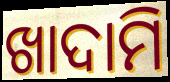
ଖାଦାମି